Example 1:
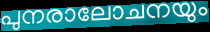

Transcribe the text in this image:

പുനരാലോചനയും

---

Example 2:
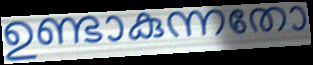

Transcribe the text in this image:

ഉണ്ടാകുന്നതോ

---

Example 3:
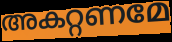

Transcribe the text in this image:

അകറ്റണമേ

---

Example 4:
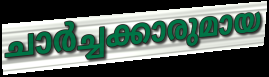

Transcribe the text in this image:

ചാർച്ചക്കാരുമായ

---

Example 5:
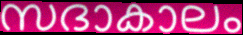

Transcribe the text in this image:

സദാകാലം